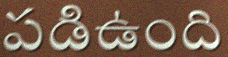
పడిఉంది